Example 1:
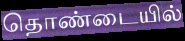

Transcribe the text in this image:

தொண்டையில்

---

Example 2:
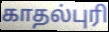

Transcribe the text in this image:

காதல்புரி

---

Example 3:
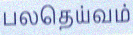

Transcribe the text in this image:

பலதெய்வம்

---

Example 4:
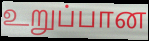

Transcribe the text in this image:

உறுப்பான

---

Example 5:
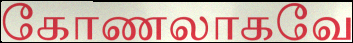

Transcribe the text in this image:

கோணலாகவே